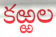
కఱ్ఱల